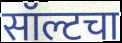
सॉल्टचा